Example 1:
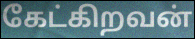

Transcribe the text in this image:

கேட்கிறவன்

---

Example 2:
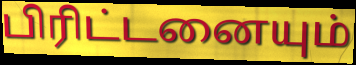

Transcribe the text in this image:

பிரிட்டனையும்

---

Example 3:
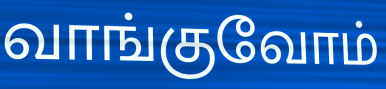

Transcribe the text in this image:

வாங்குவோம்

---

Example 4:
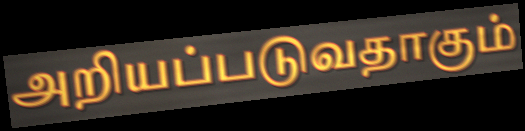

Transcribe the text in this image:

அறியப்படுவதாகும்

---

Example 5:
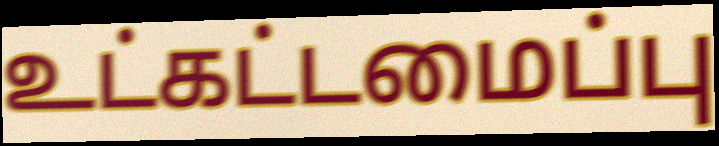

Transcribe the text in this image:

உட்கட்டமைப்பு